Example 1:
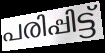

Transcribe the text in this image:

പരിപ്പിട്ട്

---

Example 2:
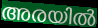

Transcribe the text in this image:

അരയിൽ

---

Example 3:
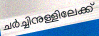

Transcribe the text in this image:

ചർച്ചിനുള്ളിലേക്ക്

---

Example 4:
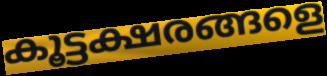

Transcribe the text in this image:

കൂട്ടക്ഷരങ്ങളെ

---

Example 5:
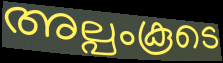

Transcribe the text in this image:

അല്പംകൂടെ